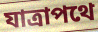
যাত্রাপথে